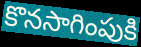
కొనసాగింపుకి